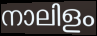
നാലിളം